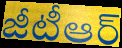
జీటీఆర్